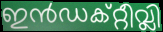
ഇൻഡക്റ്റീവ്ലി